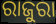
ରାଜୁରା